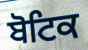
ਬੋਟਿਕ